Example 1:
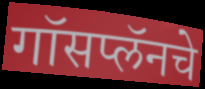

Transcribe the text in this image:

गॉसप्लॅनचे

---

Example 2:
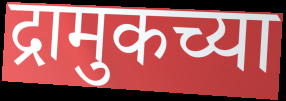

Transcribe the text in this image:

द्रामुकच्या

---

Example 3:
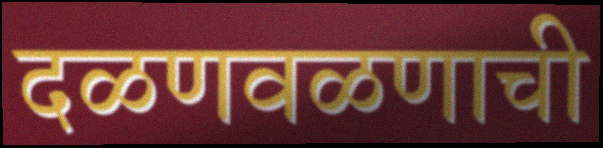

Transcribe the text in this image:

दळणवळणाची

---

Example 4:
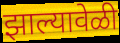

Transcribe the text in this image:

झाल्यावेळी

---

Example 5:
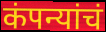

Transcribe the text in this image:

कंपन्यांचं